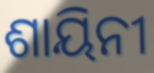
ଶାୟିନୀ